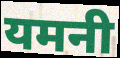
यमनी